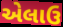
એલાઉ